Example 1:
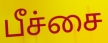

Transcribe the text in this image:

பீச்சை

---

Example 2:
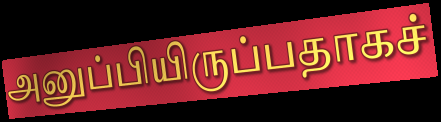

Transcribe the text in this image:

அனுப்பியிருப்பதாகச்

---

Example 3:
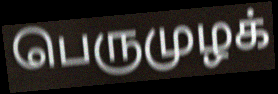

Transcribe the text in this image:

பெருமுழக்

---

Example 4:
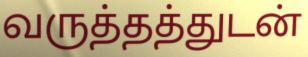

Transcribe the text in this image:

வருத்தத்துடன்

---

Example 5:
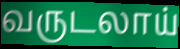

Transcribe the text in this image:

வருடலாய்